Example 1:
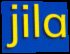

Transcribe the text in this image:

jila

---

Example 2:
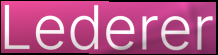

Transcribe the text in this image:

Lederer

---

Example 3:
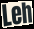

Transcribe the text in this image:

Leh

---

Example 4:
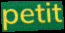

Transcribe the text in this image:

petit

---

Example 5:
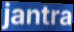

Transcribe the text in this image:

jantra